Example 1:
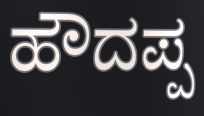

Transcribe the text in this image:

ಹೌದಪ್ಪ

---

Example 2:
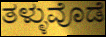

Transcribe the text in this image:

ತಳ್ಳುವೊಡೆ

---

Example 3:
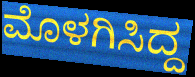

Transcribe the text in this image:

ಮೊಳಗಿಸಿದ್ದ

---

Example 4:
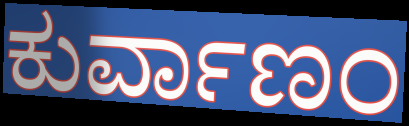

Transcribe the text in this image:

ಕುರ್ವಾಣಂ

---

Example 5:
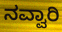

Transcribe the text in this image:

ನವ್ವಾರಿ